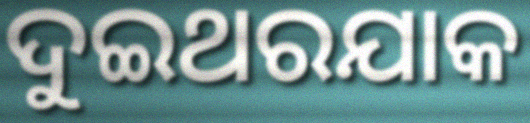
ଦୁଇଥରଯାକ